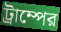
ট্রাম্পের